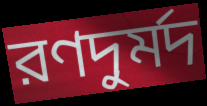
রণদুর্মদ